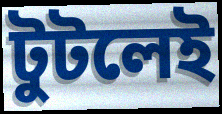
টুটলেই